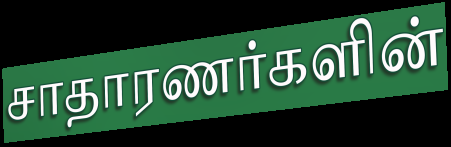
சாதாரணர்களின்